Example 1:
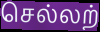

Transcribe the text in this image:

செல்லற்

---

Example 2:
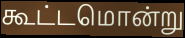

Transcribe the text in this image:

கூட்டமொன்று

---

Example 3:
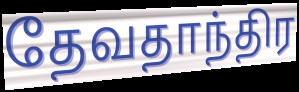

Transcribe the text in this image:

தேவதாந்திர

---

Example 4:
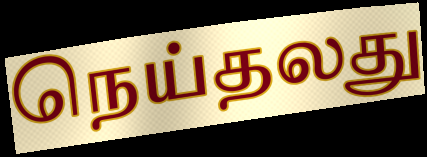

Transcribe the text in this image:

நெய்தலது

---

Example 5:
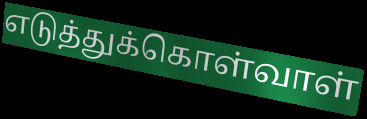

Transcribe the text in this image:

எடுத்துக்கொள்வாள்